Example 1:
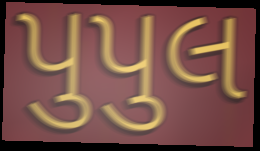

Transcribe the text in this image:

પુપુલ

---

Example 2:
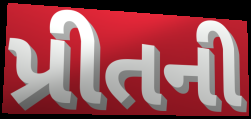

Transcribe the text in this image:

પ્રીતની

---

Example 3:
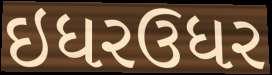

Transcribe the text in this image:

ઇધરઉધર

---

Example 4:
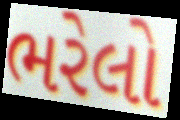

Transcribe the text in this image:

ભરેલો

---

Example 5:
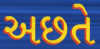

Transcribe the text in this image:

અછતે